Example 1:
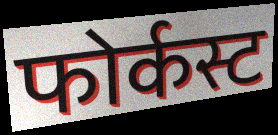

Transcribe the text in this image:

फोर्कस्ट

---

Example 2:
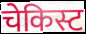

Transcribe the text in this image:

चेकिस्ट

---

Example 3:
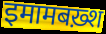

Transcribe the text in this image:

इमामबख़्श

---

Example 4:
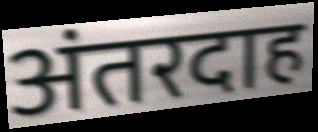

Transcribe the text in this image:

अंतरदाह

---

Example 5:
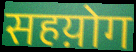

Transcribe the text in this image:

सहय़ोग